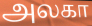
அலகா